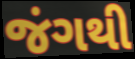
જંગથી